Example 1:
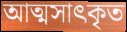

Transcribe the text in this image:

আত্মসাৎকৃত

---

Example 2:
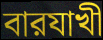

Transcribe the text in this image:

বারযাখী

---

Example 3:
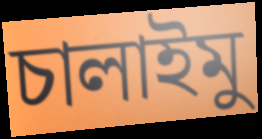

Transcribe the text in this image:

চালাইমু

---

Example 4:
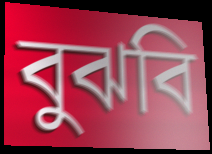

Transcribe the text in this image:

বুঝবি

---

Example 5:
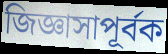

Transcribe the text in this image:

জিজ্ঞাসাপূর্বক